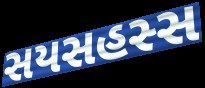
સયસહસ્સ